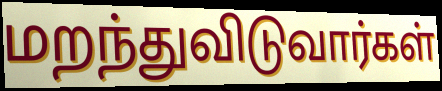
மறந்துவிடுவார்கள்